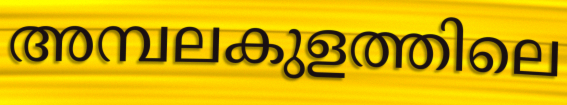
അമ്പലകുളത്തിലെ